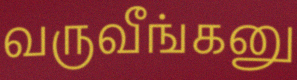
வருவீங்கனு